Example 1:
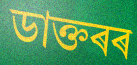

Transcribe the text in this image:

ডাক্তৰৰ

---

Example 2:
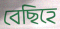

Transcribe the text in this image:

বেছিহে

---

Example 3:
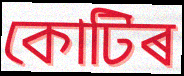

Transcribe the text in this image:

কোটিৰ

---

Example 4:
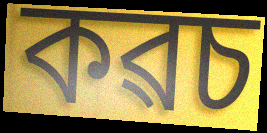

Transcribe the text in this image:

কৱচ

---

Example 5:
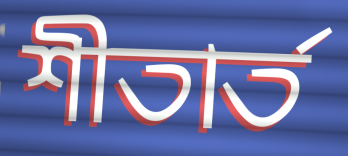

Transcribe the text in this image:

শীতাৰ্ত